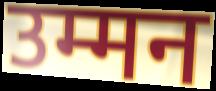
उम्मन